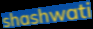
shashwati